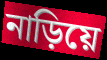
নাড়িয়ে